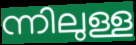
ന്നിലുള്ള